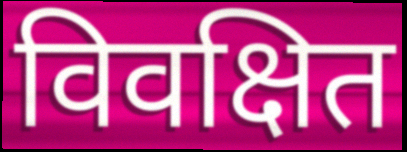
विवक्षित